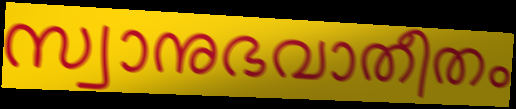
സ്വാനുഭവാതീതം